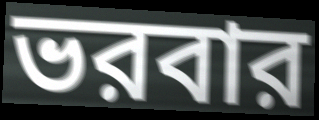
ভরবার